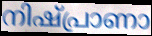
നിഷ്പ്രാണാ